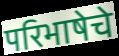
परिभाषेचे